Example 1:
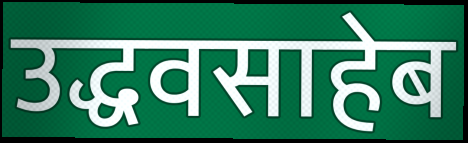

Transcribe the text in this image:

उद्धवसाहेब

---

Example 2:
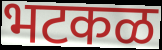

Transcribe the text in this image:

भटकळ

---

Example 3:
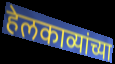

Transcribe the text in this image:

हेलकाव्यांच्या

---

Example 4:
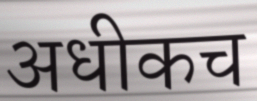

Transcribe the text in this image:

अधीकच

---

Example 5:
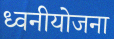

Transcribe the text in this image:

ध्वनीयोजना